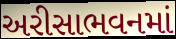
અરીસાભવનમાં